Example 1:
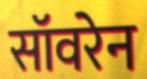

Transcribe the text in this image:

सॉवरेन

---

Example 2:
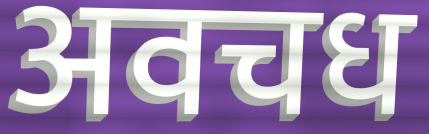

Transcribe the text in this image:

अवचध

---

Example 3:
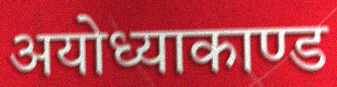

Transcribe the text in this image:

अयोध्याकाण्ड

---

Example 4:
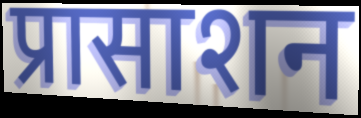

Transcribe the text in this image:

प्रासाशन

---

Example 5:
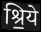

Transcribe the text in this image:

श्रि॒ये